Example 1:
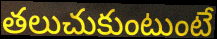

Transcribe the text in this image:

తలుచుకుంటుంటే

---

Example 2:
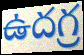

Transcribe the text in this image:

ఉదగ్ర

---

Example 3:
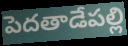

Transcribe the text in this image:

పెదతాడేపల్లి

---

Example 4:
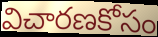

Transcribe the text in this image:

విచారణకోసం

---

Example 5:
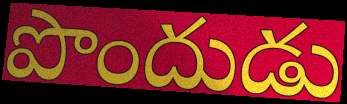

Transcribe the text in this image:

పొందుడు